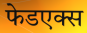
फेडएक्स